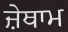
ਜ਼ੇਥਾਮ